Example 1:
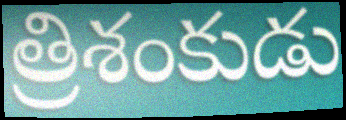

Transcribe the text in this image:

త్రిశంకుడు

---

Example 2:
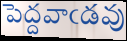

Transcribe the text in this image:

పెద్దవాఁడవు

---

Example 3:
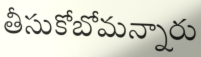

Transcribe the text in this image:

తీసుకోబోమన్నారు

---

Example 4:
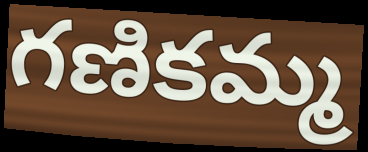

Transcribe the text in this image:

గణికమ్మ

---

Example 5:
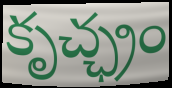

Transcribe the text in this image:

కృచ్ఛ్రం